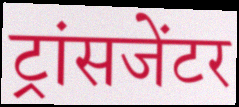
ट्रांसजेंटर